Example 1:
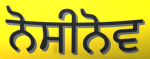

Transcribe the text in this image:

ਨੋਸੀਨੋਵ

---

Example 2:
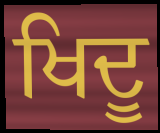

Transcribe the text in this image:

ਖਿਦੂ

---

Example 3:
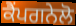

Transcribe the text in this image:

ਕੈਂਪਗਨੇਲੋ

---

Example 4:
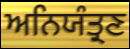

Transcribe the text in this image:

ਅਨਿਯੰਤ੍ਰਣ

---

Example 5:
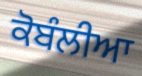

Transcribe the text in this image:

ਕੋਬੰਲੀਆ